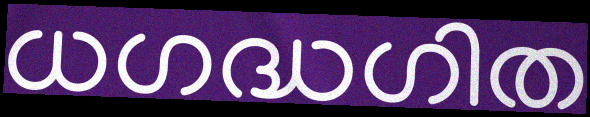
ധഗദ്ധഗിത